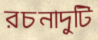
রচনাদুটি